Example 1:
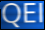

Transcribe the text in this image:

QEI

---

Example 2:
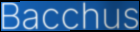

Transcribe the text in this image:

Bacchus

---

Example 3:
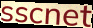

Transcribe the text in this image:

sscnet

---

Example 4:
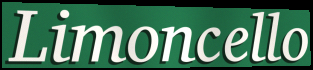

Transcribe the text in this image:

Limoncello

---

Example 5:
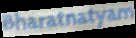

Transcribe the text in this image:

Bharatnatyam